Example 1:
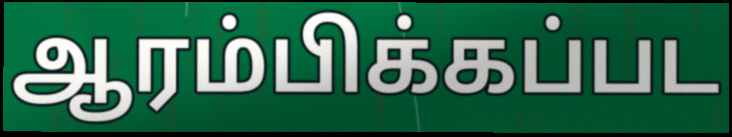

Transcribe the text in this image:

ஆரம்பிக்கப்பட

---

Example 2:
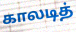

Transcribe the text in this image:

காலடித்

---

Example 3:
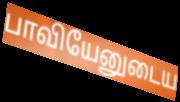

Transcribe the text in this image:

பாவியேனுடைய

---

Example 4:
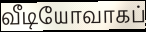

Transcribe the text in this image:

வீடியோவாகப்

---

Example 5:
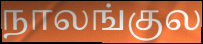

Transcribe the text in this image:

நாலங்குல